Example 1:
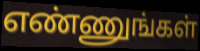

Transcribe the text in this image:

எண்ணுங்கள்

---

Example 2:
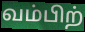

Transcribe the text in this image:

வம்பிற்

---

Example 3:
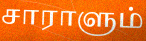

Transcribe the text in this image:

சாராளும்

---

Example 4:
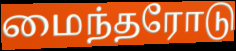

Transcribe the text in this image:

மைந்தரோடு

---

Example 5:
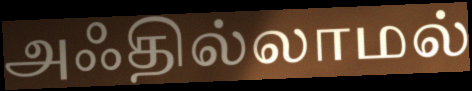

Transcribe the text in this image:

அஃதில்லாமல்